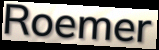
Roemer